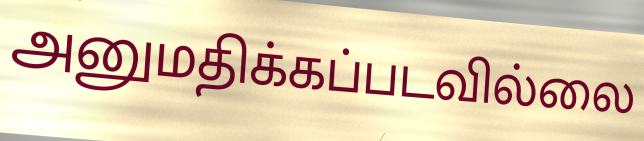
அனுமதிக்கப்படவில்லை